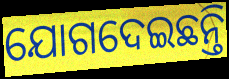
ଯୋଗଦେଇଛନ୍ତି